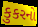
કુકરનો